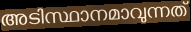
അടിസ്ഥാനമാവുന്നത്